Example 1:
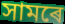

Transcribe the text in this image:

সামৰে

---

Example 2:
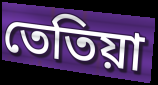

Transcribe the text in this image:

তেতিয়া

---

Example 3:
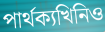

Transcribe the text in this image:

পাৰ্থক্যখিনিও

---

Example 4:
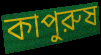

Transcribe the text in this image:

কাপুৰুষ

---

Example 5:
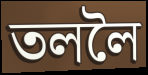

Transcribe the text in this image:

তললৈ